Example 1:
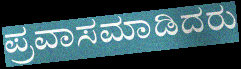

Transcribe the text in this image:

ಪ್ರವಾಸಮಾಡಿದರು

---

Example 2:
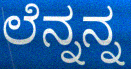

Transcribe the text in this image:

ಲೆನ್ನನ್ನ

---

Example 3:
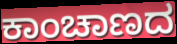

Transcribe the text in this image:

ಕಾಂಚಾಣದ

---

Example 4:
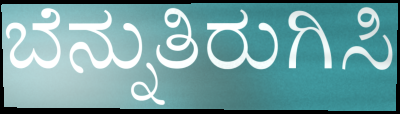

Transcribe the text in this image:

ಬೆನ್ನುತಿರುಗಿಸಿ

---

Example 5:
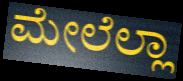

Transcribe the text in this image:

ಮೇಲೆಲ್ಲಾ